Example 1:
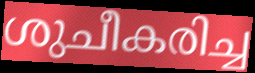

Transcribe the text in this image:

ശുചീകരിച്ച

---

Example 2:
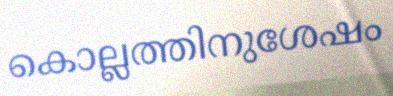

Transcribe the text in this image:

കൊല്ലത്തിനുശേഷം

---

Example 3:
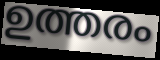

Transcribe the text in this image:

ഉത്തരം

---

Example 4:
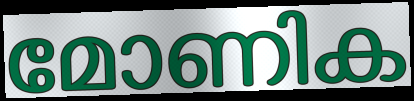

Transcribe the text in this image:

മോണിക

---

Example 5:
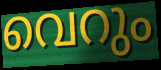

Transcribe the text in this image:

വെറും